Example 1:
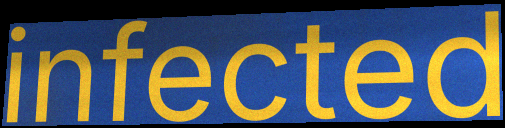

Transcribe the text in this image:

infected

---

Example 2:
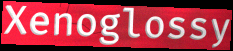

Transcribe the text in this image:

Xenoglossy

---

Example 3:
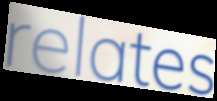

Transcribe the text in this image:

relates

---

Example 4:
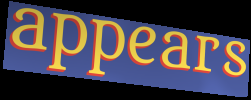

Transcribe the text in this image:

appears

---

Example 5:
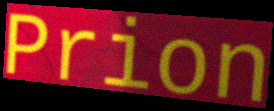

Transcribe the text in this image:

Prion